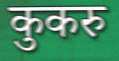
कुकरु